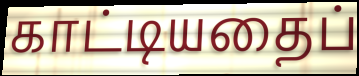
காட்டியதைப்